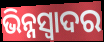
ଭିନ୍ନସ୍ବାଦର